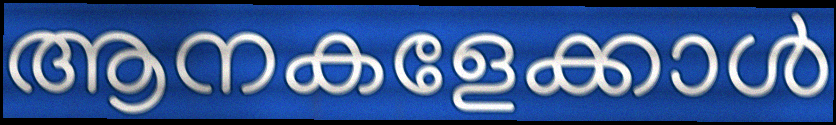
ആനകളേക്കാൾ